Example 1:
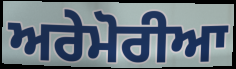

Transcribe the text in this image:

ਅਰੇਮੋਰੀਆ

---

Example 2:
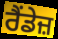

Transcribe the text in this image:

ਰੈਂਡੇਜ਼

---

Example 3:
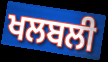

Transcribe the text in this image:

ਖਲਬਲੀ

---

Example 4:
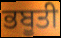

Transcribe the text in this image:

ਭਬੂਤੀ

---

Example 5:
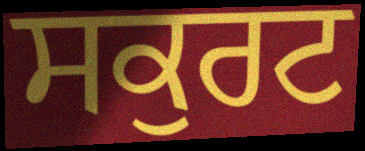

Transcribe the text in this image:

ਸਕੁਰਟ